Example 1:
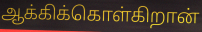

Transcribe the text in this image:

ஆக்கிக்கொள்கிறான்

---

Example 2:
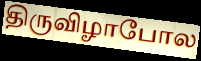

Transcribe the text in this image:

திருவிழாபோல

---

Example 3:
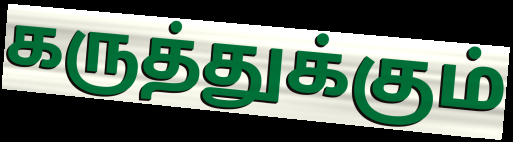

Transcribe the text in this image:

கருத்துக்கும்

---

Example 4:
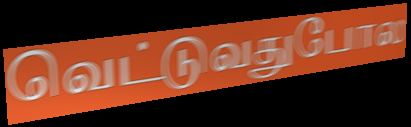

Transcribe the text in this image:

வெட்டுவதுபோல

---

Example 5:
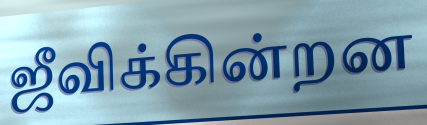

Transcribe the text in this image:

ஜீவிக்கின்றன